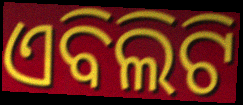
ଏବିଲିଟି